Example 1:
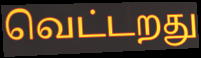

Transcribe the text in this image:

வெட்டறது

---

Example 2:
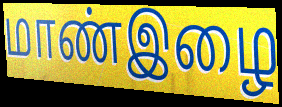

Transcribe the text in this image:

மாண்இழை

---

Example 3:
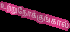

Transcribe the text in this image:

உற்றுநோக்குங்கால்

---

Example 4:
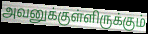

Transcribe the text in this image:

அவனுக்குள்ளிருக்கும்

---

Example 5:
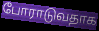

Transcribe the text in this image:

போராடுவதாக